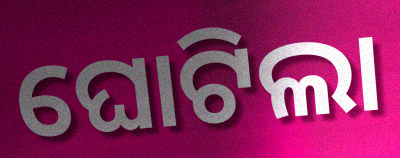
ଘୋଟିଲା